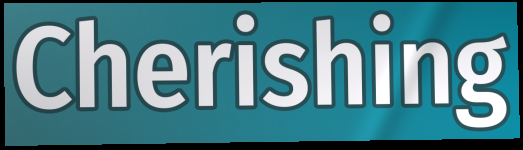
Cherishing